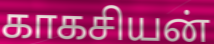
காகசியன்